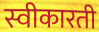
स्वीकारती